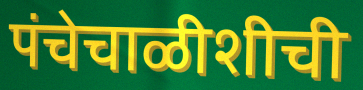
पंचेचाळीशीची